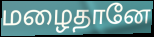
மழைதானே